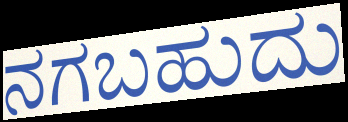
ನಗಬಹುದು